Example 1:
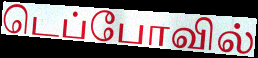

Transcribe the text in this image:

டெப்போவில்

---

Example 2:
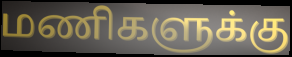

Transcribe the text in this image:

மணிகளுக்கு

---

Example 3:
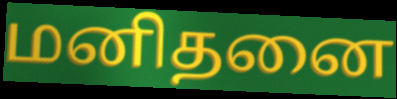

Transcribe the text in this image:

மனிதனை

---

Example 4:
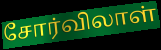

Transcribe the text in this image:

சோர்விலாள்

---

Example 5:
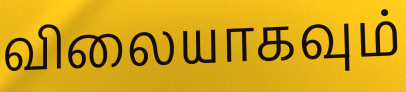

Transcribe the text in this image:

விலையாகவும்